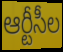
ఆర్టీసీల